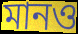
মানও